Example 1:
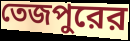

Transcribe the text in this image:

তেজপুরের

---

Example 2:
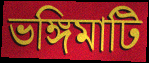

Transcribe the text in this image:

ভঙ্গিমাটি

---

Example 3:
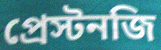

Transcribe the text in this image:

প্রেস্টনজি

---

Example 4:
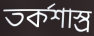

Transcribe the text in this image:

তর্কশাস্ত্র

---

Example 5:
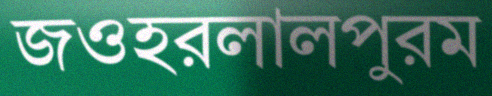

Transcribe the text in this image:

জওহরলালপুরম